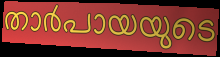
താർപായയുടെ